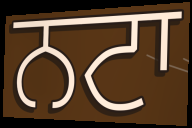
ਨਟਾ